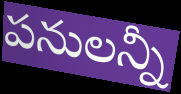
పనులన్నీ